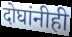
दोघांनीही